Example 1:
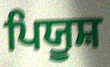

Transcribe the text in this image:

ਪਿਯੂਸ਼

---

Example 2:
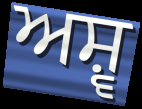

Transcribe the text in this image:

ਅਸ਼੍ਵ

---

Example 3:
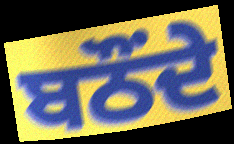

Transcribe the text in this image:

ਬਠੌਂਦੇ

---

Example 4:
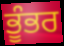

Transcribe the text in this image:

ਭੂੰਭਰ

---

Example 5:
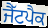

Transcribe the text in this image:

ਜੈੱਟਪੈਕ